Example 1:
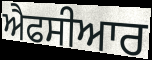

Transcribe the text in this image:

ਐਫਸੀਆਰ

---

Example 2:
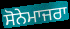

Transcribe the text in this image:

ਸੋਨੇਮਾਜਰਾ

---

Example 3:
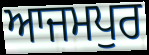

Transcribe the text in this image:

ਆਜਮਪੁਰ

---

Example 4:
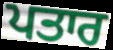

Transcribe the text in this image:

ਪਤਾਰ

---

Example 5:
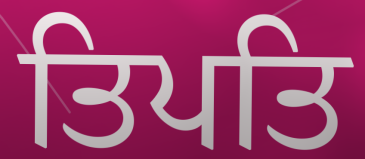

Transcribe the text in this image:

ਤਿਪਤਿ